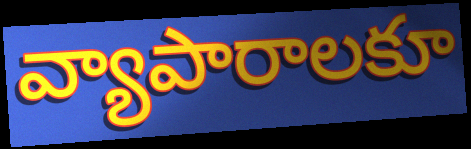
వ్యాపారాలకూ